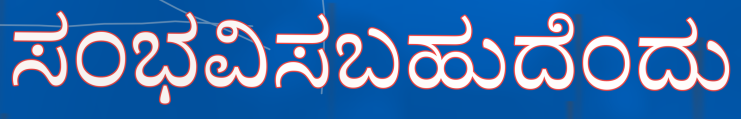
ಸಂಭವಿಸಬಹುದೆಂದು